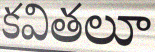
కవితలూ